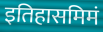
इतिहासमिमं